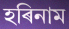
হৰিনাম